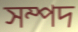
সম্পদ